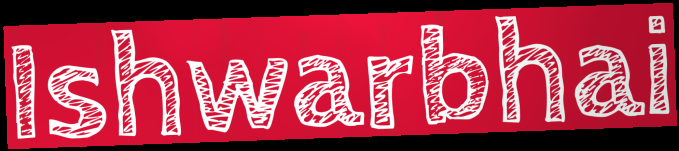
Ishwarbhai